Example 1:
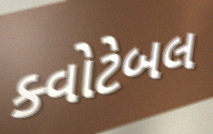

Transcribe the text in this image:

ક્વોટેબલ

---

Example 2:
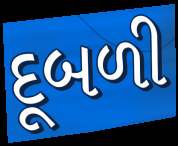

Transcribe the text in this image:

દૂબળી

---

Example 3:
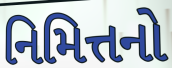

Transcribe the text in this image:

નિમિત્તનો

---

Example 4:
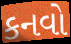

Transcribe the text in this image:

કનવો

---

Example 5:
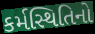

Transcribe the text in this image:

કર્મસ્થિતિનો